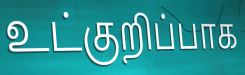
உட்குறிப்பாக